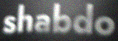
shabdo